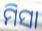
ମିସା